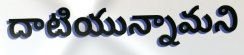
దాటియున్నామని